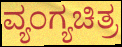
ವ್ಯಂಗ್ಯಚಿತ್ರ